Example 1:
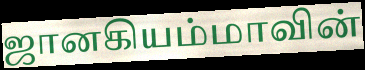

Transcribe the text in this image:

ஜானகியம்மாவின்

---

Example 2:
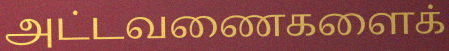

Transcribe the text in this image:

அட்டவணைகளைக்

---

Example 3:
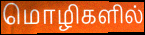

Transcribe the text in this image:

மொழிகளில்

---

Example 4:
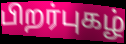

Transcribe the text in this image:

பிறர்புகழ்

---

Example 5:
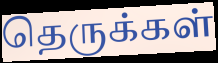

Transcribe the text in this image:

தெருக்கள்